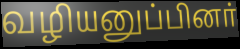
வழியனுப்பினர்